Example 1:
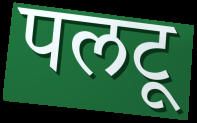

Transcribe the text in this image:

पलटू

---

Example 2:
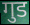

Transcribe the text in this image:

गुड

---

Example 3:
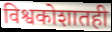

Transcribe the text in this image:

विश्वकोशातही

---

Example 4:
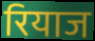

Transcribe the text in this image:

रियाज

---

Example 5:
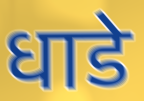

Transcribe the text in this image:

धाडे